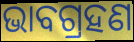
ଭାବଗ୍ରହଣ